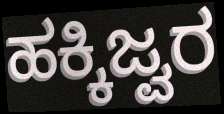
ಹಕ್ಕಿಜ್ವರ